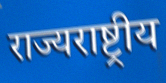
राज्यराष्ट्रीय